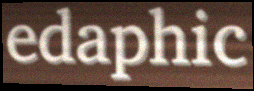
edaphic